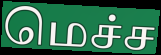
மெச்ச